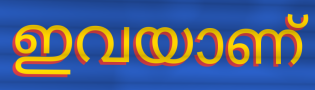
ഇവയാണ്